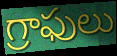
గ్రాఫులు